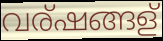
വര്ഷങ്ങള്